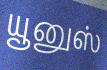
யூனுஸ்